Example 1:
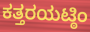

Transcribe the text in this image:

ಕತ್ತರಯಟ್ಠಿಂ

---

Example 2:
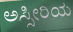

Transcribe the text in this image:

ಅಸ್ಸೀರಿಯ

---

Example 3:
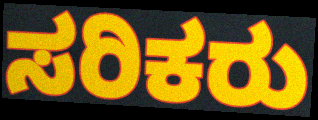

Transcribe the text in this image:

ಸರಿಕರು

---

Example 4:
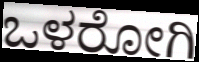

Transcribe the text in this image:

ಒಳರೋಗಿ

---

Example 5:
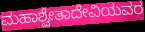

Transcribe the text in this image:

ಮಹಾಶ್ವೇತಾದೇವಿಯವರ